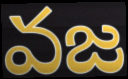
వజ